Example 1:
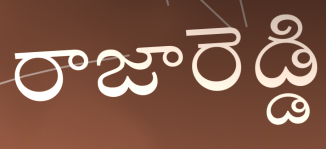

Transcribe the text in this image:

రాజారెడ్డి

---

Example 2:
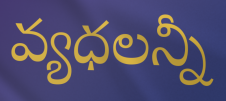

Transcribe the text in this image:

వ్యధలన్నీ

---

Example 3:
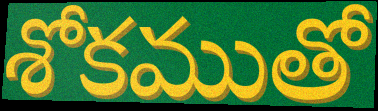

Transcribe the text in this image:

శోకముతో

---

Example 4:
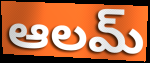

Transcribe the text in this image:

ఆలమ్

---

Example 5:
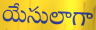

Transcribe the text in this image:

యేసులాగా